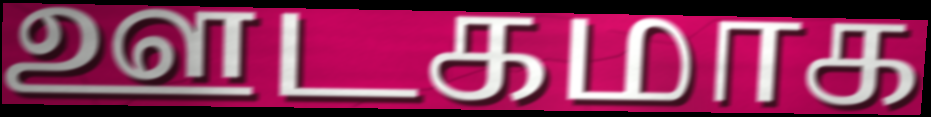
ஊடகமாக